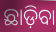
ଛାଡ଼ିବା